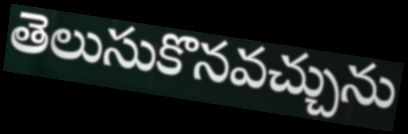
తెలుసుకొనవచ్చును